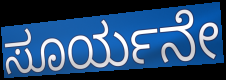
ಸೂರ್ಯನೇ